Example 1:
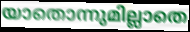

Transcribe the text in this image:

യാതൊന്നുമില്ലാതെ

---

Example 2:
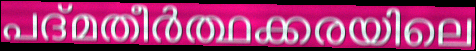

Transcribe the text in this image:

പദ്മതീർത്ഥക്കരയിലെ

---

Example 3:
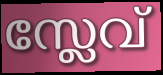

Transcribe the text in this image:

സ്ലേവ്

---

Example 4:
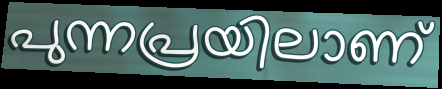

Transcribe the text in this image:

പുന്നപ്രയിലാണ്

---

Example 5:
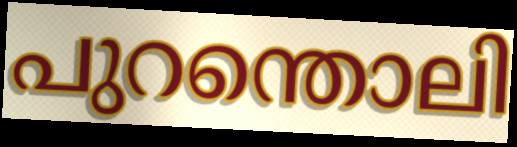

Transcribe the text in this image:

പുറന്തൊലി